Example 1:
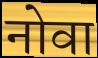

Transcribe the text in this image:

नोवा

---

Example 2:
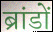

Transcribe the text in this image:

ब्रांडों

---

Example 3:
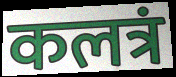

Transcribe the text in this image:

कलत्रं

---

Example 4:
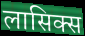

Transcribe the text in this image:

लासिक्स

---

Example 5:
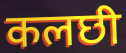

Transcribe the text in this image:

कलछी